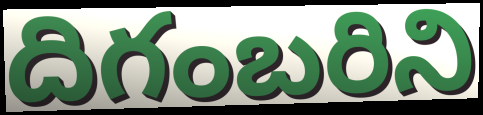
దిగంబరిని